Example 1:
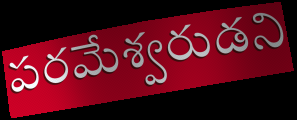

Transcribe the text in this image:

పరమేశ్వరుడని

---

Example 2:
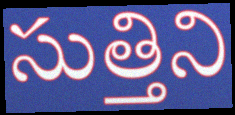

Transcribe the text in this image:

సుత్తిని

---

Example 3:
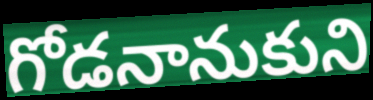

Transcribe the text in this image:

గోడనానుకుని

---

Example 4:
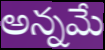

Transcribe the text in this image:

అన్నమే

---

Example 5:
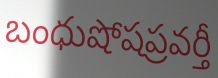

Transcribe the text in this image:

బంధుషోషప్రవర్తీ